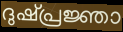
ദുഷ്പ്രജ്ഞാ